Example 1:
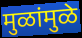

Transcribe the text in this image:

मुळांमुळे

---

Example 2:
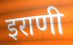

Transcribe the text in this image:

इराणी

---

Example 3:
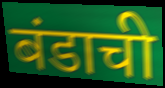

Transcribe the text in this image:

बंडाची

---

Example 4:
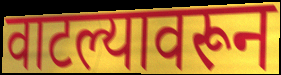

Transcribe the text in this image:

वाटल्यावरून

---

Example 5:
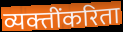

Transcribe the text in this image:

व्यक्तींकरिता